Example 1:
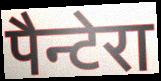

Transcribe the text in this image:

पैन्टेरा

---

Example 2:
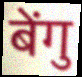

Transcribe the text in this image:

बेंगु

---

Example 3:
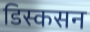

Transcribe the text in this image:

डिस्कसन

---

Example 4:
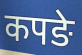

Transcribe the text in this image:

कपङे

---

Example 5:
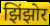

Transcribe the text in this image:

झिंझोर